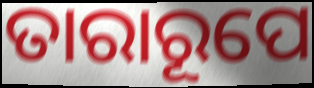
ତାରାରୂପେ